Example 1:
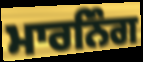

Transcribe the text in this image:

ਮਾਰਨਿੰਗ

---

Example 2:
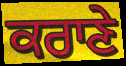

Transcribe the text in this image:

ਕਰਾਣੇ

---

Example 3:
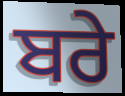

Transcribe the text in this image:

ਬਰੇ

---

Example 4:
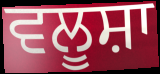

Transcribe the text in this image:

ਵਲੂਸ਼ਾ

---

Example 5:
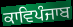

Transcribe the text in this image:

ਕਾਵਿਪੰਜਾਬ